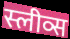
स्लीव्स